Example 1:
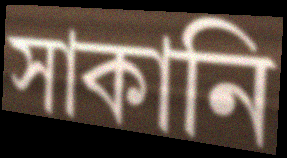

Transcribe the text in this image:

সাকানি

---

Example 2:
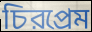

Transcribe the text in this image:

চিরপ্রেম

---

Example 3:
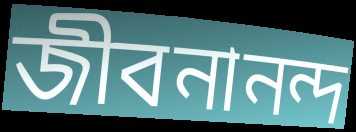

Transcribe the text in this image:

জীবনানন্দ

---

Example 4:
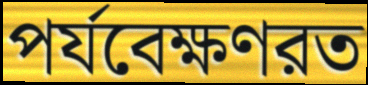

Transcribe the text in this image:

পর্যবেক্ষণরত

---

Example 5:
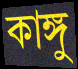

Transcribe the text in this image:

কাঙ্গু